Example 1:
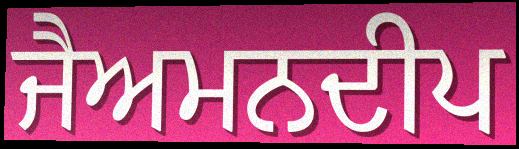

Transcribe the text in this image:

ਜੈਅਮਨਦੀਪ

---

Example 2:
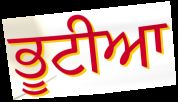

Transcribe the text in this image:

ਭੂਟੀਆ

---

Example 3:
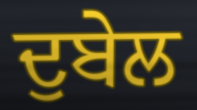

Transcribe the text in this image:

ਦੁਬੇਲ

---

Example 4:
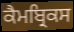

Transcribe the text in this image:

ਕੈਮਬ੍ਰਿਕਸ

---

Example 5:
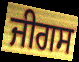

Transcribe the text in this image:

ਜੀਗਸ